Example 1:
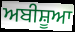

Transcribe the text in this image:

ਅਬੀਸ਼ੂਆ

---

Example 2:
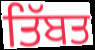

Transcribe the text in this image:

ਤਿੱਬਤ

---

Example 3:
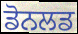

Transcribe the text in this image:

ਡੋਨਲਡ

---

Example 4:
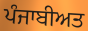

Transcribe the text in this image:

ਪੰਜਾਬੀਅਤ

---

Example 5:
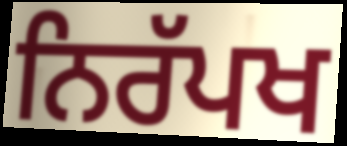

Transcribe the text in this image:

ਨਿਰੱਪਖ